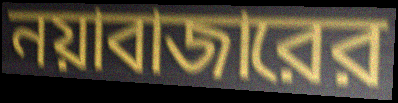
নয়াবাজারের